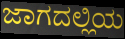
ಜಾಗದಲ್ಲಿಯ